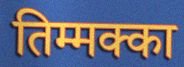
तिम्मक्का